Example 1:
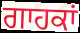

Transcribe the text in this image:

ਗਾਹਕਾਂ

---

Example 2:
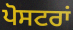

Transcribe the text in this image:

ਪੋਸਟਰਾਂ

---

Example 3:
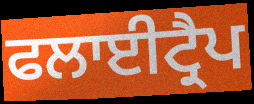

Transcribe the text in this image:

ਫਲਾਈਟ੍ਰੈਪ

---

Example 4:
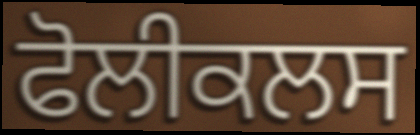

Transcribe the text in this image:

ਫੋਲੀਕਲਸ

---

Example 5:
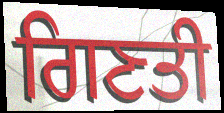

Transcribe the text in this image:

ਗਿਣਤੀ